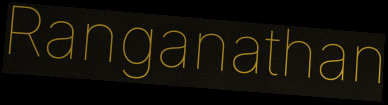
Ranganathan